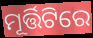
ମୂର୍ତ୍ତିଟିରେ